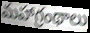
మహాగ్రంథాలు